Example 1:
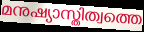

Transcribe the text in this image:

മനുഷ്യാസ്തിത്വത്തെ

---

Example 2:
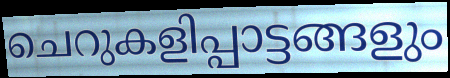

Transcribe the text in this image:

ചെറുകളിപ്പാട്ടങ്ങളും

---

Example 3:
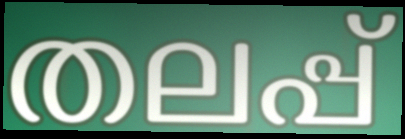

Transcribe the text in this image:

തലപ്പ്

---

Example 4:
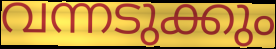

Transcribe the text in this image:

വന്നടുക്കും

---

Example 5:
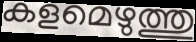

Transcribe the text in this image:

കളമെഴുത്തു